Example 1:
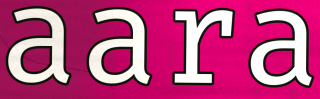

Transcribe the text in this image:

aara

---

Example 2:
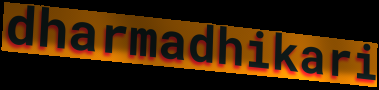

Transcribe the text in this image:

dharmadhikari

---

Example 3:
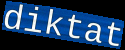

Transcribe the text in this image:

diktat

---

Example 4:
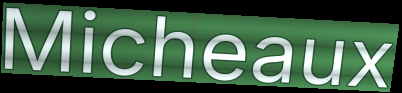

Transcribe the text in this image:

Micheaux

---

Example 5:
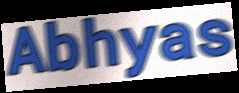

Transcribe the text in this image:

Abhyas